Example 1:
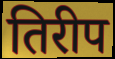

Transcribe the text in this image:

तिरीप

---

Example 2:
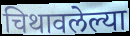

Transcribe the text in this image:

चिथावलेल्या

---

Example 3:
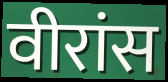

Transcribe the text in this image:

वीरांस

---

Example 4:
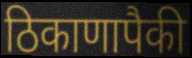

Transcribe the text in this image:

ठिकाणापैकी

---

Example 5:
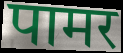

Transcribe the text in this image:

पामर